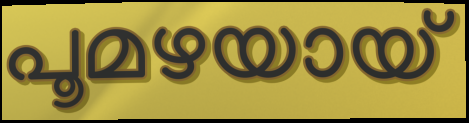
പൂമഴയായ്